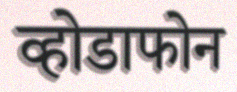
व्होडाफोन